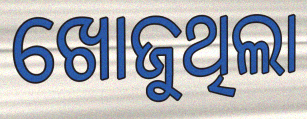
ଖୋଜୁଥିଲା